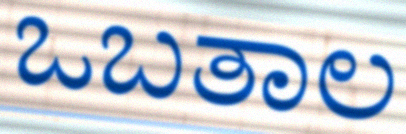
ಒಬತಾಲ